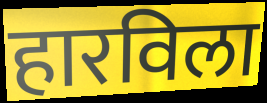
हारविला